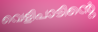
വെളിപാടിന്റെ